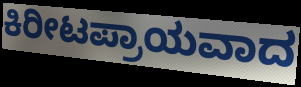
ಕಿರೀಟಪ್ರಾಯವಾದ